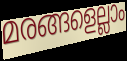
മരങ്ങളെല്ലാം